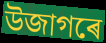
উজাগৰে